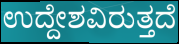
ಉದ್ದೇಶವಿರುತ್ತದೆ